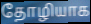
தோழியாக